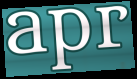
apr